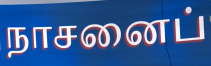
நாசனைப்